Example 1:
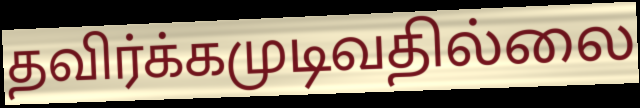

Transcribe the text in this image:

தவிர்க்கமுடிவதில்லை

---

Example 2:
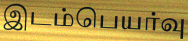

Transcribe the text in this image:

இடம்பெயர்வு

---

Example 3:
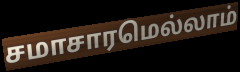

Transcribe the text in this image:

சமாசாரமெல்லாம்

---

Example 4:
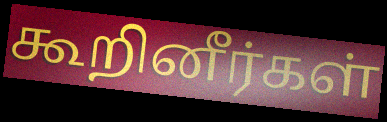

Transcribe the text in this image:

கூறினீர்கள்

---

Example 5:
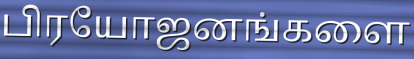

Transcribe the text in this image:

பிரயோஜனங்களை